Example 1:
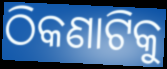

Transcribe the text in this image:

ଠିକଣାଟିକୁ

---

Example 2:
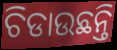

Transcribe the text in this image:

ଚିଡାଉଛନ୍ତି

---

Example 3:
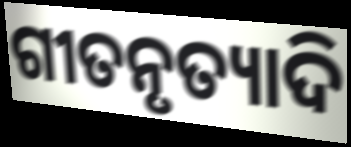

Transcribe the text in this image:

ଗୀତନୃତ୍ୟାଦି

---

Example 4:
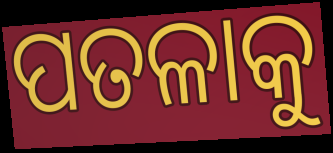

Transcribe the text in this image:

ପତଳାକୁ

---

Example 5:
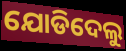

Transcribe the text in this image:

ଯୋଡିଦେଲୁ